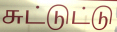
சுட்டுட்டு